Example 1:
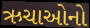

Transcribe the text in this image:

ઋચાઓનો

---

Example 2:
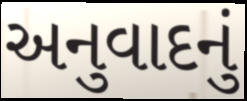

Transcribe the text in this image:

અનુવાદનું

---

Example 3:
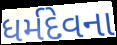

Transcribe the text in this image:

ધર્મદેવના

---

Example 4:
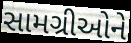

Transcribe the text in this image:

સામગ્રીઓને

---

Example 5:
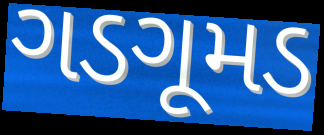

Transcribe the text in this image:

ગડગૂમડ